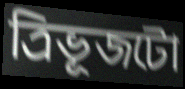
ত্ৰিভূজটো